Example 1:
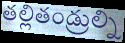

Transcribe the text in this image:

తల్లితండ్రుల్ని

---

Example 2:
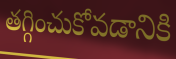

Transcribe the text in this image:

తగ్గించుకోవడానికి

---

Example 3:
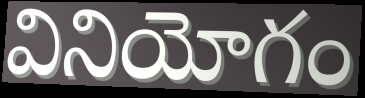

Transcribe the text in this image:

వినియోగం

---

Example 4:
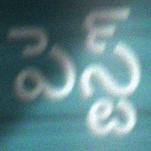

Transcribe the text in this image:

పెస్ట్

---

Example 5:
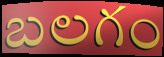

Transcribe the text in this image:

బలగం